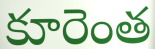
కూరెంత